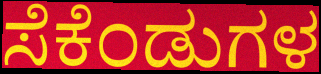
ಸೆಕೆಂಡುಗಳ